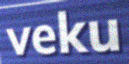
veku